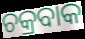
ଚକ୍ରବାକ